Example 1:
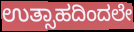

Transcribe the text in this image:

ಉತ್ಸಾಹದಿಂದಲೇ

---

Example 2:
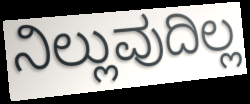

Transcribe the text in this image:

ನಿಲ್ಲುವುದಿಲ್ಲ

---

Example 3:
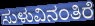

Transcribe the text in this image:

ಸುಳುವಿನಂತಿರೆ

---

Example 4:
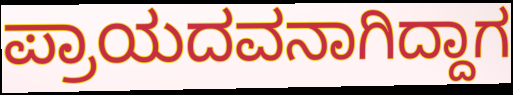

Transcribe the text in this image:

ಪ್ರಾಯದವನಾಗಿದ್ದಾಗ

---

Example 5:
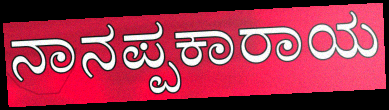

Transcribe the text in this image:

ನಾನಪ್ಪಕಾರಾಯ